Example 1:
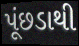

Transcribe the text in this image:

પૂંછડાથી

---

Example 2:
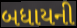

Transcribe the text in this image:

બધાયની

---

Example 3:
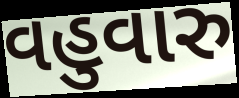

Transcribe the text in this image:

વહુવારુ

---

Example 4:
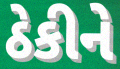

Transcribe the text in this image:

ઠેકીને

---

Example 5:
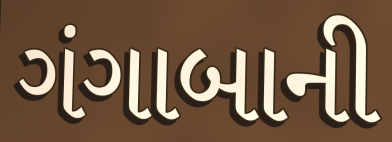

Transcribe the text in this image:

ગંગાબાની